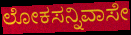
ಲೋಕಸನ್ನಿವಾಸೇ